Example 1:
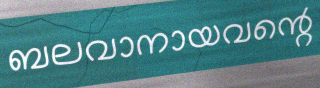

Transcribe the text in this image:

ബലവാനായവന്റെ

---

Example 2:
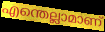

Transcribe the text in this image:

എന്തെല്ലാമാണ്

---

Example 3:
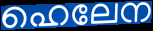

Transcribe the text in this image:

ഹെലേന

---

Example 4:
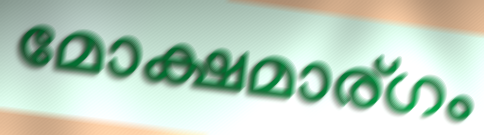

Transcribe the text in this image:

മോക്ഷമാര്ഗം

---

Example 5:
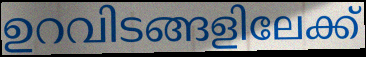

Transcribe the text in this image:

ഉറവിടങ്ങളിലേക്ക്